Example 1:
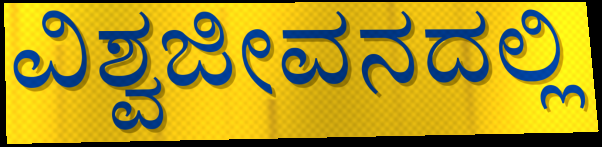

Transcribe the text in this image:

ವಿಶ್ವಜೀವನದಲ್ಲಿ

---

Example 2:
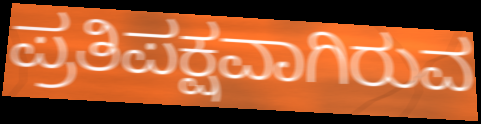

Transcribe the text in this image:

ಪ್ರತಿಪಕ್ಷವಾಗಿರುವ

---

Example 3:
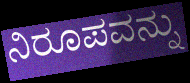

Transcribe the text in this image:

ನಿರೂಪವನ್ನು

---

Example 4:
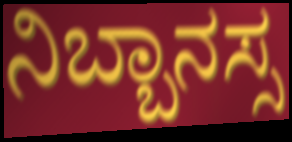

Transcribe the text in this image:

ನಿಬ್ಬಾನಸ್ಸ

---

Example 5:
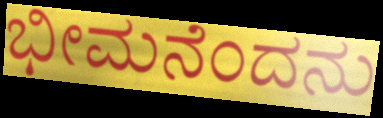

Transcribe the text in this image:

ಭೀಮನೆಂದನು